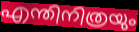
എന്തിനിത്രയും